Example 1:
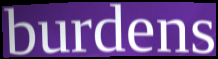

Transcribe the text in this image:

burdens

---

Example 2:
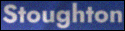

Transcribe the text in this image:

Stoughton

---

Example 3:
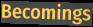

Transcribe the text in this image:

Becomings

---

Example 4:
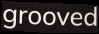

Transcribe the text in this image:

grooved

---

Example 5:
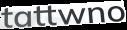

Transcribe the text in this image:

tattwno